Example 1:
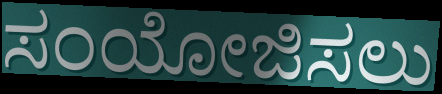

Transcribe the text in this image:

ಸಂಯೋಜಿಸಲು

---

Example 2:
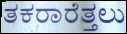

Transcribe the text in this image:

ತಕರಾರೆತ್ತಲು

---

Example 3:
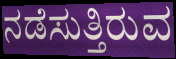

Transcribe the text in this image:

ನಡೆಸುತ್ತಿರುವ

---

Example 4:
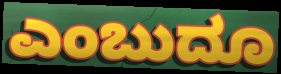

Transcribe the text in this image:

ಎಂಬುದೂ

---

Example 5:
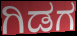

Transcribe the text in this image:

ಗಿಡಗ